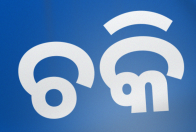
ଚକି